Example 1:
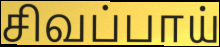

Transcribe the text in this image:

சிவப்பாய்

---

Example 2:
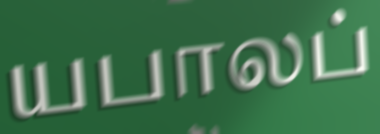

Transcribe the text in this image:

யபாலப்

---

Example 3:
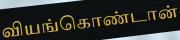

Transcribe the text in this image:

வியங்கொண்டான்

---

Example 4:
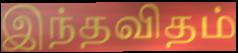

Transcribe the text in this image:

இந்தவிதம்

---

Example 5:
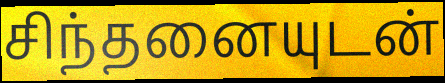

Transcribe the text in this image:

சிந்தனையுடன்